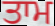
ਤਾਮ